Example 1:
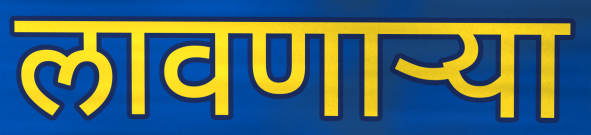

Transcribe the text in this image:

लावणाऱ्या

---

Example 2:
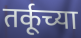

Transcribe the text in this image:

तर्कूच्या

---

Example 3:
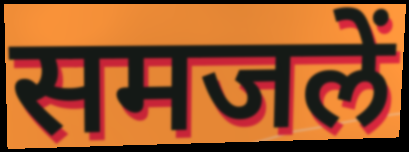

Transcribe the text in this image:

समजलें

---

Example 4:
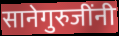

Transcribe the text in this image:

सानेगुरुजींनी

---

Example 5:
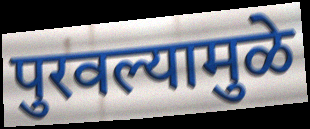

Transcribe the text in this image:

पुरवल्यामुळे